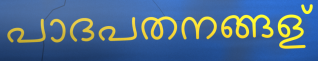
പാദപതനങ്ങള്